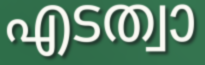
എടത്വാ